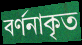
বর্ণনাকৃত